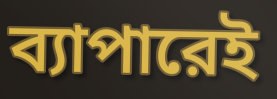
ব্যাপারেই